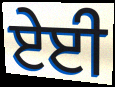
ਏਈ